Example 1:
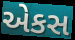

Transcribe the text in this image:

એકસ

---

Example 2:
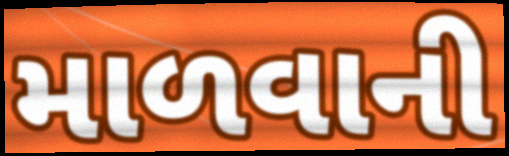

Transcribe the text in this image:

માળવાની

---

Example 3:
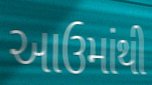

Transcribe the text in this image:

આઉમાંથી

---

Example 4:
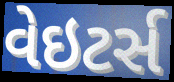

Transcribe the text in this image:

વેઇટર્સ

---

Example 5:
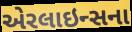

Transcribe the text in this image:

એરલાઇન્સના